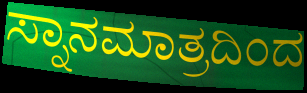
ಸ್ನಾನಮಾತ್ರದಿಂದ